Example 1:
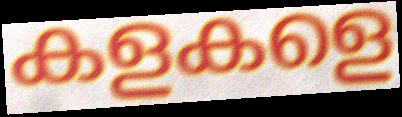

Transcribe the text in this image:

കളകളെ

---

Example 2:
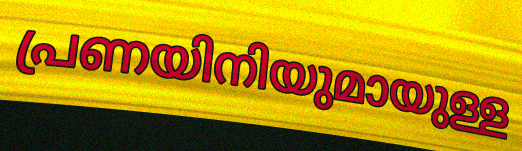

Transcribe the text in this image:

പ്രണയിനിയുമായുള്ള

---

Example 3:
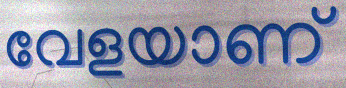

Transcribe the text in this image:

വേളയാണ്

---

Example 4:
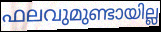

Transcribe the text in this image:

ഫലവുമുണ്ടായില്ല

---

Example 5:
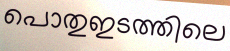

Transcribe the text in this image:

പൊതുഇടത്തിലെ